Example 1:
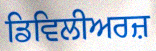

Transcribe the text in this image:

ਡਿਵਿਲੀਅਰਜ਼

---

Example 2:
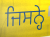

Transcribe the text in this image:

ਜਿਸਨ੍ਹੇ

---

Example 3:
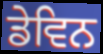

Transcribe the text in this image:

ਡੇਵਿਨ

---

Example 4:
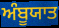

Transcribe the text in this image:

ਅੰਬੂਯਾਤ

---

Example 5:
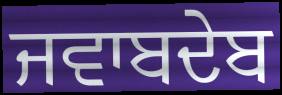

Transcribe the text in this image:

ਜਵਾਬਦੇਬ